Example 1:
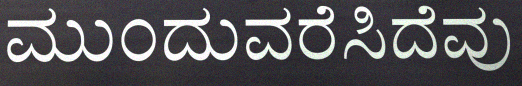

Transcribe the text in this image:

ಮುಂದುವರೆಸಿದೆವು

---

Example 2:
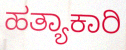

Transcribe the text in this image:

ಹತ್ಯಾಕಾರಿ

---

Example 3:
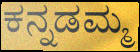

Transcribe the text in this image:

ಕನ್ನಡಮ್ಮ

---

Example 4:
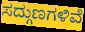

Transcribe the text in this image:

ಸದ್ಗುಣಗಳಿವೆ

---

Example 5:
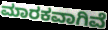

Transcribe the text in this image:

ಮಾರಕವಾಗಿವೆ